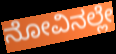
ನೋವಿನಲ್ಲೇ